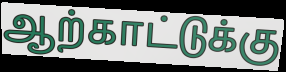
ஆற்காட்டுக்கு